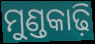
ମୁଣ୍ଡକାଢ଼ି